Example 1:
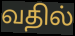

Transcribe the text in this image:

வதில்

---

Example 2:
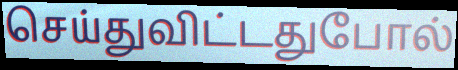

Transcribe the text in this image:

செய்துவிட்டதுபோல்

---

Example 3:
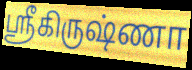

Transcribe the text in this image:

ஸ்ரீகிருஷ்ணா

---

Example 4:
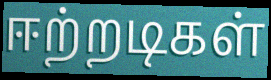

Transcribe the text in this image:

ஈற்றடிகள்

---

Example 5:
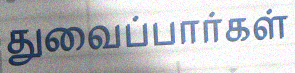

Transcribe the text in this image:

துவைப்பார்கள்